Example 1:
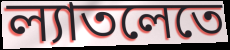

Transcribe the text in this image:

ল্যাতলেতে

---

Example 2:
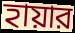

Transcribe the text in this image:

হায়ার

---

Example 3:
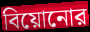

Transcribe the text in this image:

বিয়োনোর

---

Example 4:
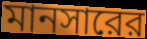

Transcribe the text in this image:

মানসারের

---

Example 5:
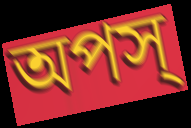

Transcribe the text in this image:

অপস্